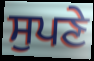
ਸੁਪਣੇ